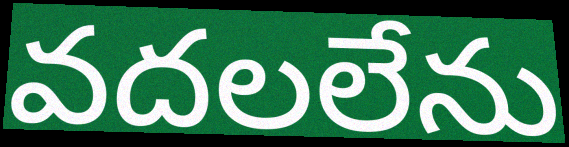
వదలలేను